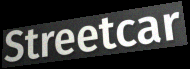
Streetcar